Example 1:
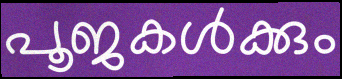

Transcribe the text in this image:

പൂജകൾക്കും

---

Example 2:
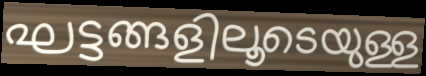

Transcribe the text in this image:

ഘട്ടങ്ങളിലൂടെയുള്ള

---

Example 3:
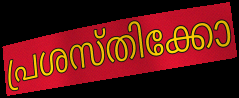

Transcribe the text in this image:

പ്രശസ്തിക്കോ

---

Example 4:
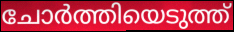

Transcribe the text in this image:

ചോർത്തിയെടുത്ത്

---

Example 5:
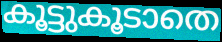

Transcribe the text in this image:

കൂട്ടുകൂടാതെ